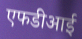
एफडीआई